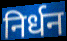
निर्धन